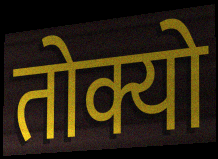
तोक्यो